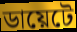
ডায়েটে